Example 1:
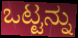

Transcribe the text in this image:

ಒಟ್ಟನ್ನು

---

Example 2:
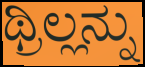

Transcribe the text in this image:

ಥ್ರಿಲ್ಲನ್ನು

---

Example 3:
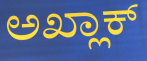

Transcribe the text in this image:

ಅಖ್ಲಾಕ್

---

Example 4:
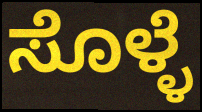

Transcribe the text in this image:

ಸೊಳ್ಳೆ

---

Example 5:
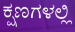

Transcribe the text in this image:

ಕ್ಷಣಗಳಲ್ಲಿ